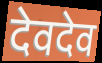
देवदेव